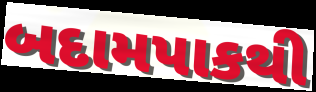
બદામપાકથી